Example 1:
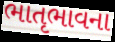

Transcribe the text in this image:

ભાતૃભાવના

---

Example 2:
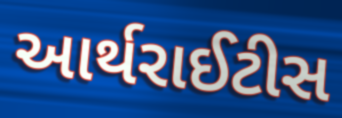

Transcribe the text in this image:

આર્થરાઈટીસ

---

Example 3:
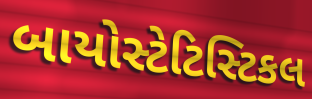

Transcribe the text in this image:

બાયોસ્ટેટિસ્ટિકલ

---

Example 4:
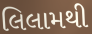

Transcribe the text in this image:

લિલામથી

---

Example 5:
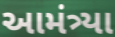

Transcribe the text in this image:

આમંત્ર્યા